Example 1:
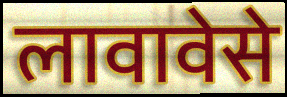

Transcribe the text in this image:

लावावेसे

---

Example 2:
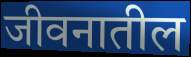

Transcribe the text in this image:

जीवनातील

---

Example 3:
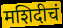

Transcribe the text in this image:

मशिदीचं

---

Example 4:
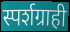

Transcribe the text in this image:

स्पर्शग्राही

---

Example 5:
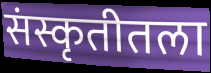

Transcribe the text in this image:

संस्कृतीतला